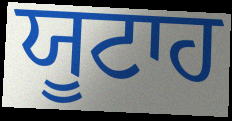
ਯੂਟਾਹ